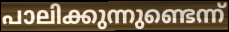
പാലിക്കുന്നുണ്ടെന്ന്